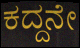
ಕದ್ದನೇ